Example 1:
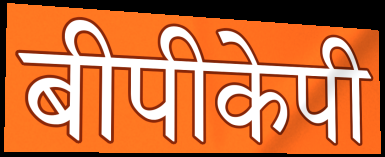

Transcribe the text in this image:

बीपीकेपी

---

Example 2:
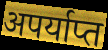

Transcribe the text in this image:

अपर्याप्त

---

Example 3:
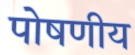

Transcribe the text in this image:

पोषणीय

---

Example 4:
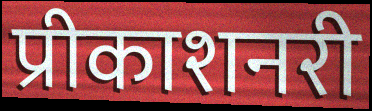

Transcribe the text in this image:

प्रीकाशनरी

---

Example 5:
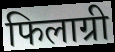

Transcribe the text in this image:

फिलाग्री